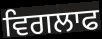
ਵਿਗਲਾਫ